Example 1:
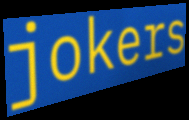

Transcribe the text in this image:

jokers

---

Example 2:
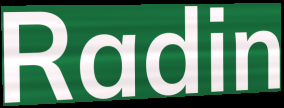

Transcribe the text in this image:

Radin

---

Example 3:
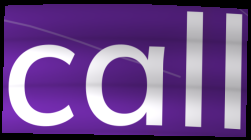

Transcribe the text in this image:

call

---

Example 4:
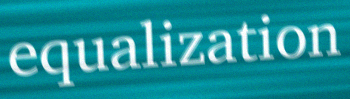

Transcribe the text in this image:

equalization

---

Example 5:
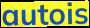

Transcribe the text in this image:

autois